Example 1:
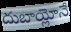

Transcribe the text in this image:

దుబాయ్లోనే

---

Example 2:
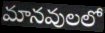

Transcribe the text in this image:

మానవులలో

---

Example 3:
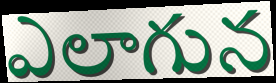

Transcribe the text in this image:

ఎలాగున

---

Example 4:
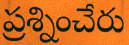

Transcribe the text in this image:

ప్రశ్నించేరు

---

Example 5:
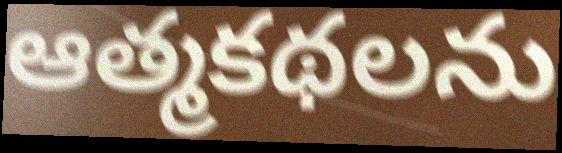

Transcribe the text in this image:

ఆత్మకథలను